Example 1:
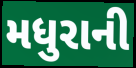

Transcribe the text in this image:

મધુરાની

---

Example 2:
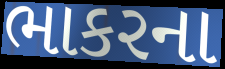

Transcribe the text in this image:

ભાકરના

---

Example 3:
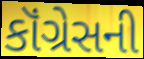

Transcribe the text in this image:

કૉંગ્રેસની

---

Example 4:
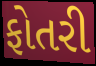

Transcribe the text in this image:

ફોતરી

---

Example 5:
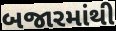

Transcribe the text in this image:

બજારમાંથી